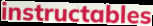
instructables